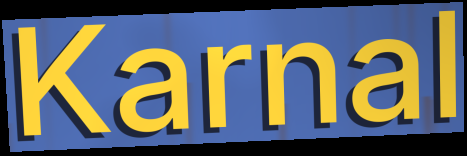
Karnal